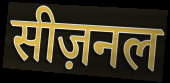
सीज़नल